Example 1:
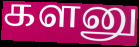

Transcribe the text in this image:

களனு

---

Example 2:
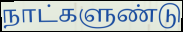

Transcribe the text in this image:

நாட்களுண்டு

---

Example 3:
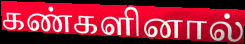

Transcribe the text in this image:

கண்களினால்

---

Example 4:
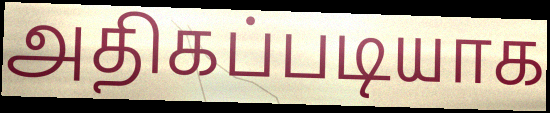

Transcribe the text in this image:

அதிகப்படியாக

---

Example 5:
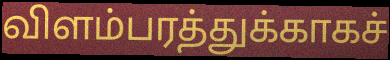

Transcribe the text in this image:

விளம்பரத்துக்காகச்